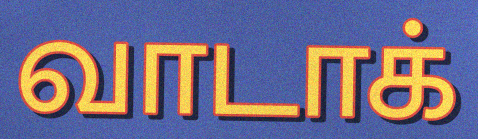
வாடாக்